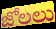
జోలలు